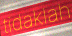
tidaklah